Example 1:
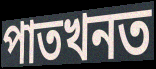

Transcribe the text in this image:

পাতখনত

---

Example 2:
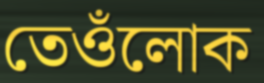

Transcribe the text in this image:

তেওঁলোক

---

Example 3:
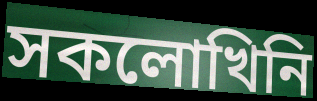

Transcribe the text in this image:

সকলোখিনি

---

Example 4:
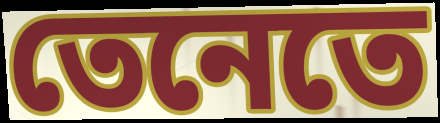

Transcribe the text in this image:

তেনেতে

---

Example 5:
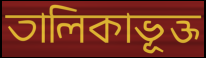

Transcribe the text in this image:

তালিকাভূক্ত